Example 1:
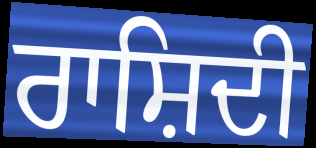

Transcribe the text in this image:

ਰਾਸ਼ਿਦੀ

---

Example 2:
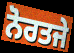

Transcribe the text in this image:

ਨੋਰਤਜੇ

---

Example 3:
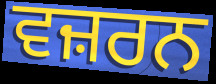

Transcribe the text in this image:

ਵਜ਼ਰਨ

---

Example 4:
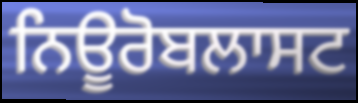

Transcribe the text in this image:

ਨਿਊਰੋਬਲਾਸਟ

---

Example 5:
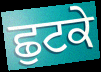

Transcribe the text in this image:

ਛੁਟਕੇ